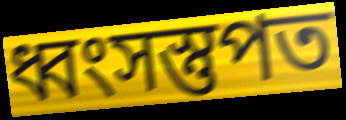
ধ্বংসস্তুপত